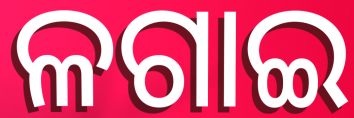
ଳଗାଇ